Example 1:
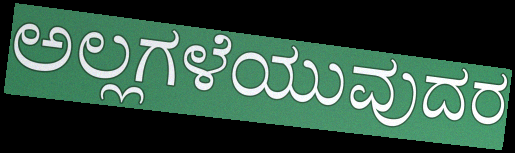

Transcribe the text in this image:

ಅಲ್ಲಗಳೆಯುವುದರ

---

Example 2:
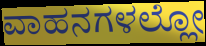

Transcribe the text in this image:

ವಾಹನಗಳಲ್ಲೋ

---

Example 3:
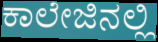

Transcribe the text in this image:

ಕಾಲೇಜಿನಲ್ಲಿ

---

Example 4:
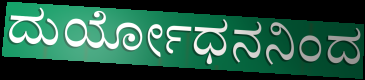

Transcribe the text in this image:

ದುರ್ಯೋಧನನಿಂದ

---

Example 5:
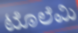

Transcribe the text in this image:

ಟೊಲೆಮಿ